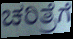
ಚರಿತ್ರೆಗೆ